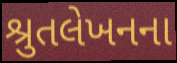
શ્રુતલેખનના